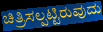
ಚಿತ್ರಿಸಲ್ಪಟ್ಟಿರುವುದು